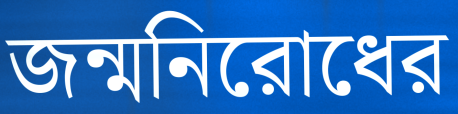
জন্মনিরোধের